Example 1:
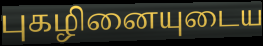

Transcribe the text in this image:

புகழினையுடைய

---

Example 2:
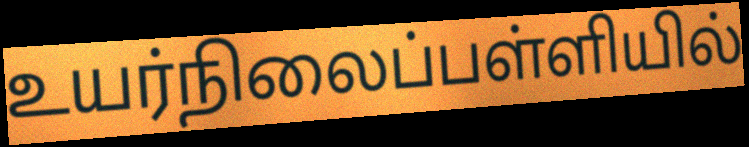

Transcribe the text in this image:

உயர்நிலைப்பள்ளியில்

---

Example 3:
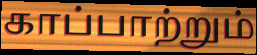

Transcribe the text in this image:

காப்பாற்றும்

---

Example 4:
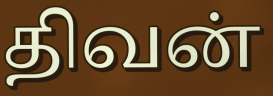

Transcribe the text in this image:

திவன்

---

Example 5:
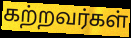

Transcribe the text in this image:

கற்றவர்கள்